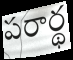
పరార్థ